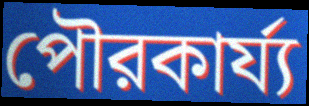
পৌরকার্য্য